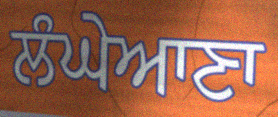
ਲੰਘੇਆਣਾ